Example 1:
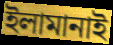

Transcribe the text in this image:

ইলামানাই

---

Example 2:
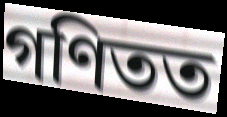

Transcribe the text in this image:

গণিতত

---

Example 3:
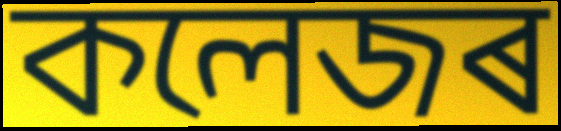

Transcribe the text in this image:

কলেজৰ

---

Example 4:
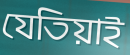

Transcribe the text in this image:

যেতিয়াই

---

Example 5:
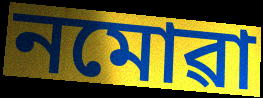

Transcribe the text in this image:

নমোৱা